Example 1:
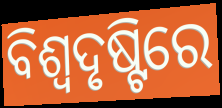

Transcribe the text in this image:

ବିଶ୍ଵଦୃଷ୍ଟିରେ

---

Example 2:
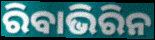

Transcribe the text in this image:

ରିବାଭିରିନ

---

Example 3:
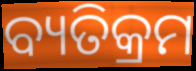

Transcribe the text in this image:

ବ୍ୟତିକ୍ରମ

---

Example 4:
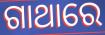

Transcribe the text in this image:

ଗାଥାରେ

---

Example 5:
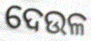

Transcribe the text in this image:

ଦେଉଳ